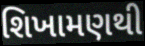
શિખામણથી